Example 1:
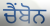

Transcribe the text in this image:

ਚੈਂਬੋਨ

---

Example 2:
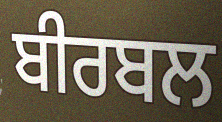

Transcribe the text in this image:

ਬੀਰਬਲ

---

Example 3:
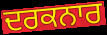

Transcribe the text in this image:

ਦਰਕਨਾਰ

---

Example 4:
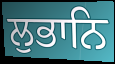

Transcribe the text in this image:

ਲੁਭਾਨਿ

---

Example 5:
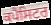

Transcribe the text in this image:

ਕਪੈਸਿਟਰ